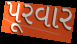
પૂરવાર